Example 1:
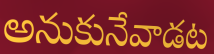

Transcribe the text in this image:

అనుకునేవాడట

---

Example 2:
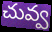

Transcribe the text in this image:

చువ్వ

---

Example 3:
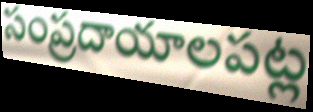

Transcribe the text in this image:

సంప్రదాయాలపట్ల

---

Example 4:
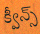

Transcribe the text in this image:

క్వీన్స్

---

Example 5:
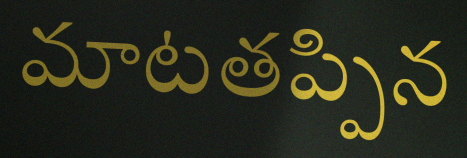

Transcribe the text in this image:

మాటతప్పిన